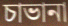
চাভানা